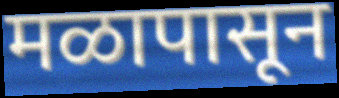
मळापासून